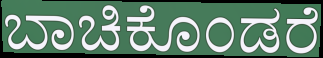
ಬಾಚಿಕೊಂಡರೆ